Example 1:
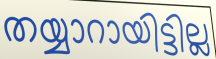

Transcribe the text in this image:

തയ്യാറായിട്ടില്ല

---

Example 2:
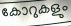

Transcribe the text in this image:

കോറുകളും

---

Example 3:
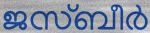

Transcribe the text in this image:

ജസ്ബീർ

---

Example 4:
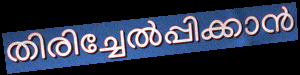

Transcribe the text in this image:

തിരിച്ചേൽപ്പിക്കാൻ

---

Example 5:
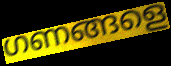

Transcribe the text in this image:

ഗണങ്ങളെ